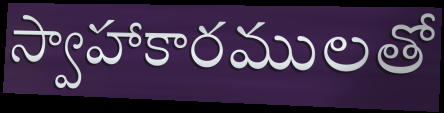
స్వాహాకారములతో